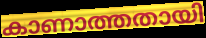
കാണാത്തതായി